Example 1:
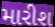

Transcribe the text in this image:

મારીશ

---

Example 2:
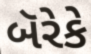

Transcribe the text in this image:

બૅરેકે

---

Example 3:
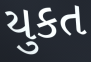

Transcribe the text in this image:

યુકત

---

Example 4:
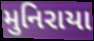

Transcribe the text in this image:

મુનિરાયા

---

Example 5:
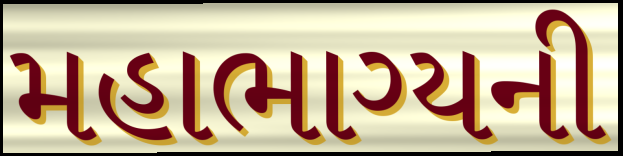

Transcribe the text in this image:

મહાભાગ્યની